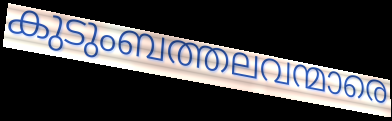
കുടുംബത്തലവന്മാരെ